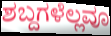
ಶಬ್ದಗಳೆಲ್ಲವೂ